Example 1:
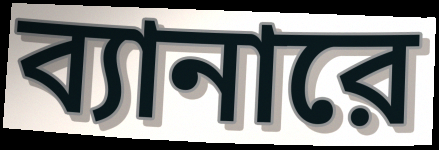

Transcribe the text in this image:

ব্যানারে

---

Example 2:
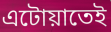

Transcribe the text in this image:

এটোয়াতেই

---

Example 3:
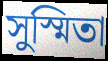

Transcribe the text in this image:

সুস্মিতা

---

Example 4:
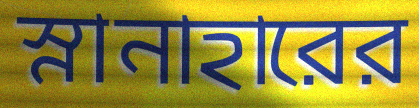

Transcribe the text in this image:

স্নানাহারের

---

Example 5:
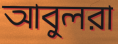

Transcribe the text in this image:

আবুলরা